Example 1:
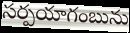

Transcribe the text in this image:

సర్పయాగంబును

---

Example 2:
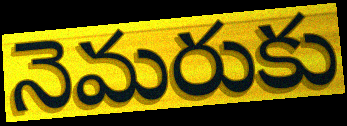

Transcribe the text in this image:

నెమరుకు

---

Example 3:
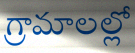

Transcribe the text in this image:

గ్రామాలల్లో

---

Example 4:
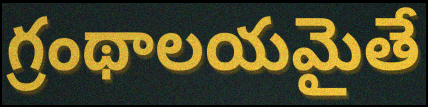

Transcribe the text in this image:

గ్రంథాలయమైతే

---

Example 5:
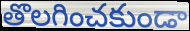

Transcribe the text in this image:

తొలగించకుండా